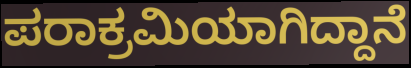
ಪರಾಕ್ರಮಿಯಾಗಿದ್ದಾನೆ